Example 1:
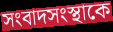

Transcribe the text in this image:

সংবাদসংস্থাকে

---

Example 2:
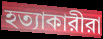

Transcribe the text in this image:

হত্যাকারীরা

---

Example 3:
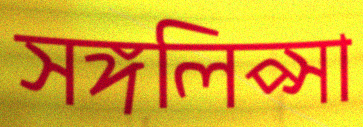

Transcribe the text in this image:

সঙ্গলিপ্সা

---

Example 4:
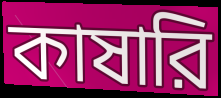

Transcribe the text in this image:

কাষারি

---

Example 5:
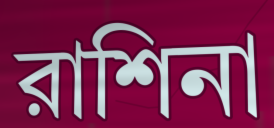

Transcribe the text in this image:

রাশিনা